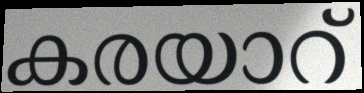
കരയാറ്